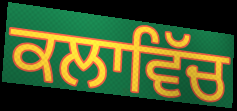
ਕਲਾਵਿੱਚ